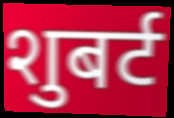
शुबर्ट